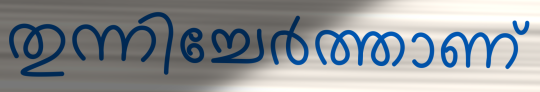
തുന്നിച്ചേർത്താണ്